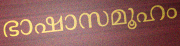
ഭാഷാസമൂഹം